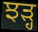
ਝੜ੍ਹ